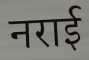
नराई